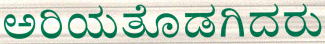
ಅರಿಯತೊಡಗಿದರು